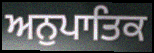
ਅਨੁਪਾਤਿਕ